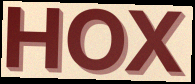
HOX